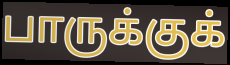
பாருக்குக்